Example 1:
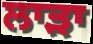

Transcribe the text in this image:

ਲਾੜਾ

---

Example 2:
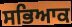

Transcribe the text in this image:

ਸਭਿਆਕ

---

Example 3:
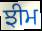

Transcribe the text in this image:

ਝੀਮ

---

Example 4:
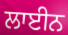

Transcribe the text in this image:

ਲਾਈਨ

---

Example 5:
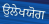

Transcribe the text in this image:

ਉਲੇਖਯੋਗ